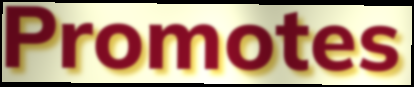
Promotes